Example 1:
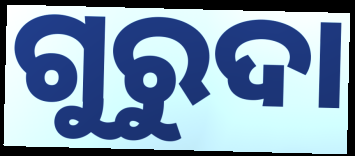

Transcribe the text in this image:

ଗୁରୁଦା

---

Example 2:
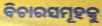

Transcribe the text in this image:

ବିଚାରସମୂହକୁ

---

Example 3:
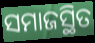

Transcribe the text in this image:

ସମାଜସ୍ଥିତ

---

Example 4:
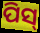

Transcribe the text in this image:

ପିସ୍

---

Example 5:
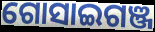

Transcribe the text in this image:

ଗୋସାଇଗଞ୍ଜ